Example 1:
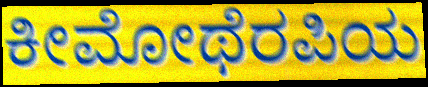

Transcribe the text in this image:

ಕೀಮೋಥೆರಪಿಯ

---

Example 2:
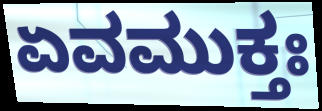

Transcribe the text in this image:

ಏವಮುಕ್ತಃ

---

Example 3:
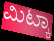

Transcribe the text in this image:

ಮಿಟ್ಕಾ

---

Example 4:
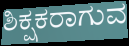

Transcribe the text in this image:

ಶಿಕ್ಷಕರಾಗುವ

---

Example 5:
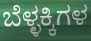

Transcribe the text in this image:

ಬೆಳ್ಳಕ್ಕಿಗಳ